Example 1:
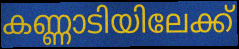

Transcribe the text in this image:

കണ്ണാടിയിലേക്ക്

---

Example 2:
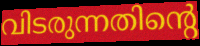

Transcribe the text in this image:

വിടരുന്നതിന്റെ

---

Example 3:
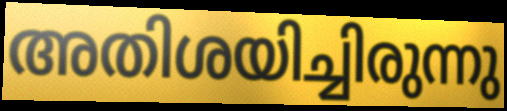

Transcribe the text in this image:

അതിശയിച്ചിരുന്നു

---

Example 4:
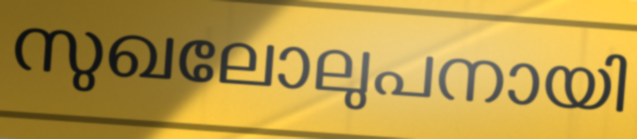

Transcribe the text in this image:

സുഖലോലുപനായി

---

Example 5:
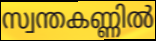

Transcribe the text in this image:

സ്വന്തകണ്ണിൽ